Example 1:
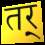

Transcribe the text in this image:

तर्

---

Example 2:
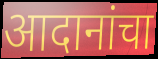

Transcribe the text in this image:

आदानांचा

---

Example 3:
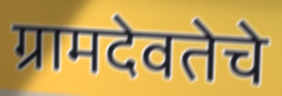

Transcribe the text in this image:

ग्रामदेवतेचे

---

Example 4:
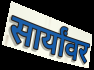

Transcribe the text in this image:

सार्यांवर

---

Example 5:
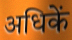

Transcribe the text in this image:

अधिकें